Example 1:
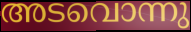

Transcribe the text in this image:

അടവൊന്നു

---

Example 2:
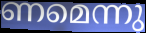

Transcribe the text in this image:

ണമെന്നു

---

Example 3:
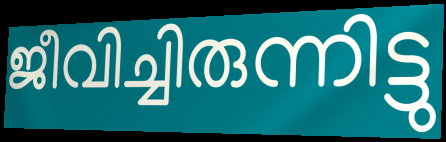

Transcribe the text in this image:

ജീവിച്ചിരുന്നിട്ടു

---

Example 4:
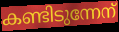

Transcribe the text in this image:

കണ്ടിടുന്നേന്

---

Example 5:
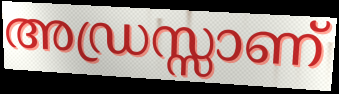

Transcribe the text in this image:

അഡ്രസ്സാണ്